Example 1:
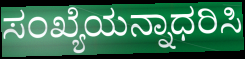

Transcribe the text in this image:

ಸಂಖ್ಯೆಯನ್ನಾಧರಿಸಿ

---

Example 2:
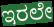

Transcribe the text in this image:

ಇರಲೇ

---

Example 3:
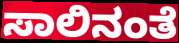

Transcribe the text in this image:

ಸಾಲಿನಂತೆ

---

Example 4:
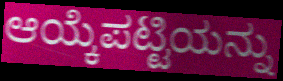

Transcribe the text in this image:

ಆಯ್ಕೆಪಟ್ಟಿಯನ್ನು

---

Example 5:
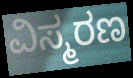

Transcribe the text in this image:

ವಿಸ್ಮರಣ